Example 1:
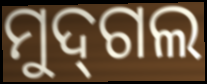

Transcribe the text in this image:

ମୁଦ୍‌ଗଲ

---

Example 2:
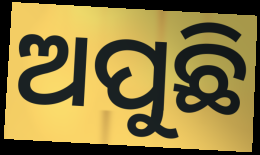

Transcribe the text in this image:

ଅପୁଛି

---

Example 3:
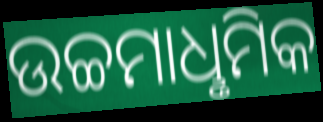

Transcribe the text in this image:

ଉଚ୍ଚମାଧୢମିକ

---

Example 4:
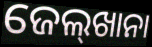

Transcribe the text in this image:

ଜେଲ୍‌ଖାନା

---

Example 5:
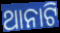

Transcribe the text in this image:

ଥାନାଟି